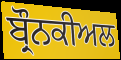
ਬ੍ਰੌਨਕੀਅਲ